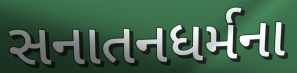
સનાતનધર્મના